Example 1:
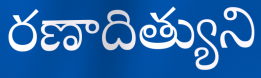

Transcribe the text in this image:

రణాదిత్యుని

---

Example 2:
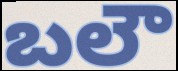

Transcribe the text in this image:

బలౌ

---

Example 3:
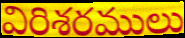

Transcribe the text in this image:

విరిశరములు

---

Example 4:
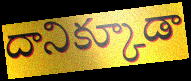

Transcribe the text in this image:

దానిక్కూడా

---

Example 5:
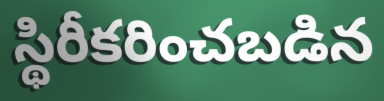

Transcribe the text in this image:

స్థిరీకరించబడిన